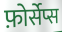
फ़ोर्सेप्स